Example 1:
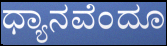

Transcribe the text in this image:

ಧ್ಯಾನವೆಂದೂ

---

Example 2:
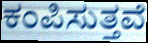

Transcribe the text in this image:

ಕಂಪಿಸುತ್ತವೆ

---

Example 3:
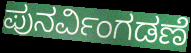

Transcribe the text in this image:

ಪುನರ್ವಿಂಗಡಣೆ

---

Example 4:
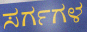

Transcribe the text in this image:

ಸರ್ಗಗಳ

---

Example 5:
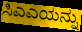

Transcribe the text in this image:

ಸಿಎಎಯನ್ನು